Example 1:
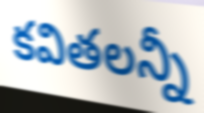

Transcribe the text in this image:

కవితలన్నీ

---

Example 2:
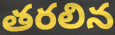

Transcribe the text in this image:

తరలిన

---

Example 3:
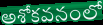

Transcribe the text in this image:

అశోకవనంలో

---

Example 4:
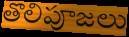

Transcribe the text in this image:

తొలిపూజలు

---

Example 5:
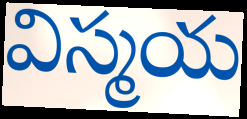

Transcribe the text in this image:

విస్మయ